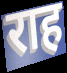
राह